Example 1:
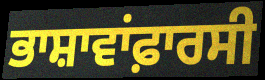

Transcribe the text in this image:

ਭਾਸ਼ਾਵਾਂਫ਼ਾਰਸੀ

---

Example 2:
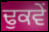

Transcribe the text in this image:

ਢੁਕਵੇਂ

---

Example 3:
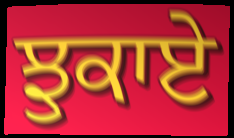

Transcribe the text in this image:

ਝੁਕਾਏ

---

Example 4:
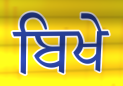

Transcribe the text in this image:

ਬਿਖੇ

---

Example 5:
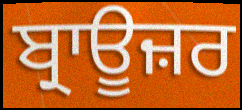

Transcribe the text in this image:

ਬ੍ਰਾਊਜ਼ਰ